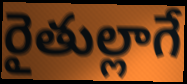
రైతుల్లాగే